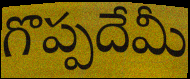
గొప్పదేమీ